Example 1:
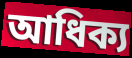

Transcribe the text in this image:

আধিক্য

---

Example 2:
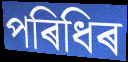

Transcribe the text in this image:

পৰিধিৰ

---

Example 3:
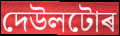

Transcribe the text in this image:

দেউলটোৰ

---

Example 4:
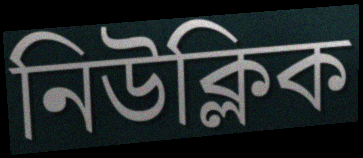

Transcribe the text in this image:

নিউক্লিক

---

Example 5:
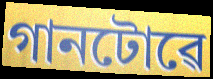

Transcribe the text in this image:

গানটোৱে